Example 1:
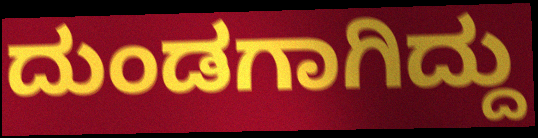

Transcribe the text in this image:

ದುಂಡಗಾಗಿದ್ದು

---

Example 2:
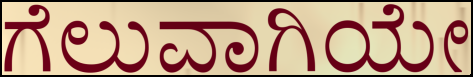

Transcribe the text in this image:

ಗೆಲುವಾಗಿಯೇ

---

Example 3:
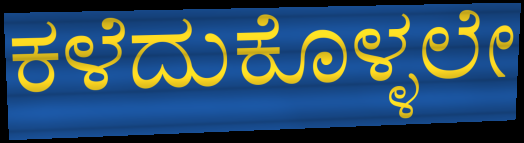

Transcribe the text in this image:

ಕಳೆದುಕೊಳ್ಳಲೇ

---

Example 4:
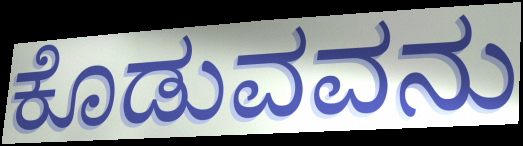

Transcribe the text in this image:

ಕೊಡುವವನು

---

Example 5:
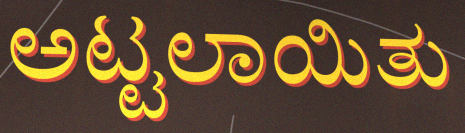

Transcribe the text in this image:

ಅಟ್ಟಲಾಯಿತು